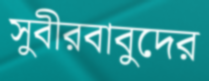
সুবীরবাবুদের